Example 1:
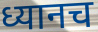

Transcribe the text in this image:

ध्यानच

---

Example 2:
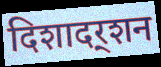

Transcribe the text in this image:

दिशादर्शन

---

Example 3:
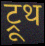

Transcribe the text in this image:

ट्रूथ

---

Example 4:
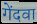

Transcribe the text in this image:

गेंदवा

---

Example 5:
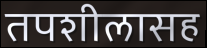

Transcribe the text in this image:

तपशीलासह